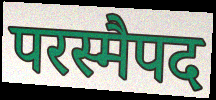
परस्मैपद